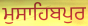
ਮੁਸਾਹਿਬਪੁਰ